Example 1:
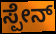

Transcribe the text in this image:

ಸ್ಪೇನ್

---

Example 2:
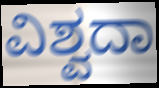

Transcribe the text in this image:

ವಿಶ್ವದಾ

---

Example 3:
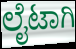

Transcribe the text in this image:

ಲೈಟಾಗಿ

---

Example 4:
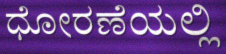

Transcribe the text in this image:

ಧೋರಣೆಯಲ್ಲಿ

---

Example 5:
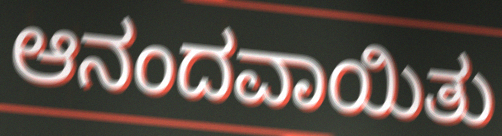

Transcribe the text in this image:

ಆನಂದವಾಯಿತು